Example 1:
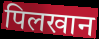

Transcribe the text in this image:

पिलखान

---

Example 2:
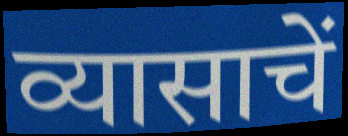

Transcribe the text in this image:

व्यासाचें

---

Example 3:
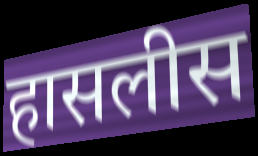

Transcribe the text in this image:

हासलीस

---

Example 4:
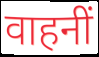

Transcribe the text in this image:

वाहनीं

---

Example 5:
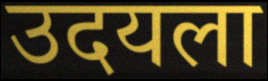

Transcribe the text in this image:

उदयला